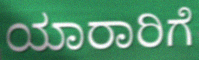
ಯಾರಾರಿಗೆ